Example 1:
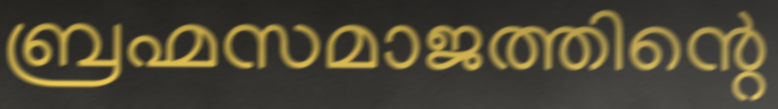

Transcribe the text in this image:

ബ്രഹ്മസമാജത്തിന്റെ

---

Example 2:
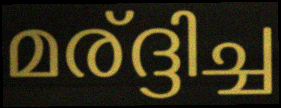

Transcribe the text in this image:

മര്ദ്ദിച്ച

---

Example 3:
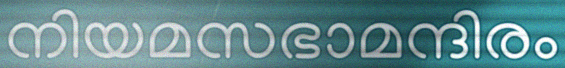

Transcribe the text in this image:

നിയമസഭാമന്ദിരം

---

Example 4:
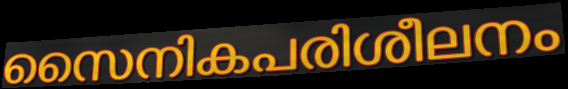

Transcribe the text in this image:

സൈനികപരിശീലനം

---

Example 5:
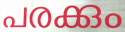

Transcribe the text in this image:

പരക്കും